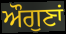
ਔਗੁਣਾਂ